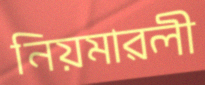
নিয়মাৱলী